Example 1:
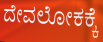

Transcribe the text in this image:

ದೇವಲೋಕಕ್ಕೆ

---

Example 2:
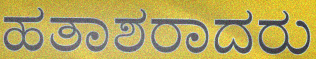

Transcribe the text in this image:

ಹತಾಶರಾದರು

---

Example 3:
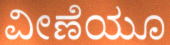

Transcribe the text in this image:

ವೀಣೆಯೂ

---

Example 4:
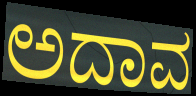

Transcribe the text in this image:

ಅದಾವ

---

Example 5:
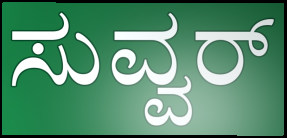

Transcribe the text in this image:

ಸುವ್ವರ್